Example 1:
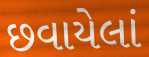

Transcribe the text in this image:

છવાયેલાં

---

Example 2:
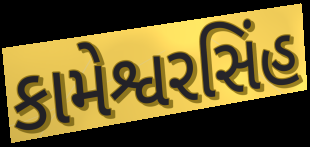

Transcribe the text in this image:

કામેશ્વરસિંહ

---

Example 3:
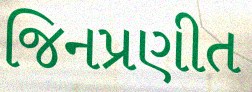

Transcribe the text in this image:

જિનપ્રણીત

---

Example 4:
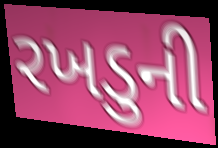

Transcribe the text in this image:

રખડુની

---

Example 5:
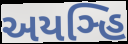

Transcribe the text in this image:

અયઞ્હિ